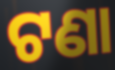
ଟଣା